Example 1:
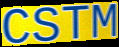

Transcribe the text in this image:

CSTM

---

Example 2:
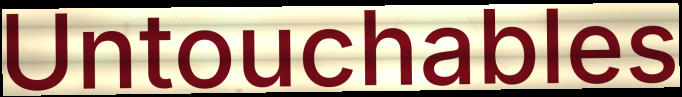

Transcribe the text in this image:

Untouchables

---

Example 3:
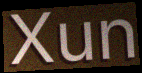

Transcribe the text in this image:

Xun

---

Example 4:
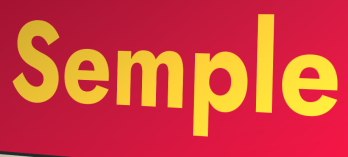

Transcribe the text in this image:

Semple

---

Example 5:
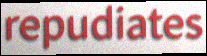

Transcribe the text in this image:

repudiates